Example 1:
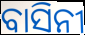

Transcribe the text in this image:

ବାସିନୀ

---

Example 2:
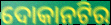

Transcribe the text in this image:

ଦୋକାନଟିର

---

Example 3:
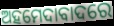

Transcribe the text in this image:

ଅହମେଦାବାଦରେ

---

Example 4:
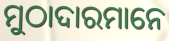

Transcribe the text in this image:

ମୁଠାଦାରମାନେ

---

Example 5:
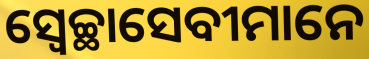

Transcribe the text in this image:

ସ୍ୱେଚ୍ଛାସେବୀମାନେ